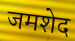
जमशेद